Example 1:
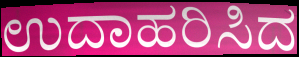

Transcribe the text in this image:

ಉದಾಹರಿಸಿದ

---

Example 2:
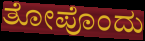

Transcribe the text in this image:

ತೋಪೊಂದು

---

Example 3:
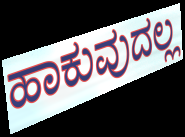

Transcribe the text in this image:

ಹಾಕುವುದಲ್ಲ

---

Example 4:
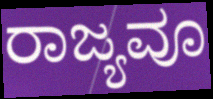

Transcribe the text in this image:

ರಾಜ್ಯವೂ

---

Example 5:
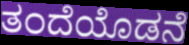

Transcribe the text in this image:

ತಂದೆಯೊಡನೆ